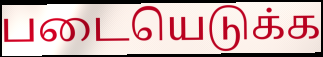
படையெடுக்க